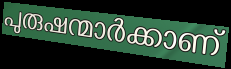
പുരുഷന്മാർക്കാണ്